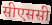
सीएससी